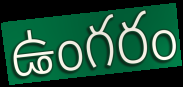
ఉంగరం